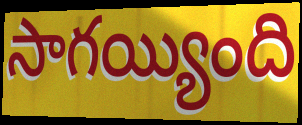
సాగయ్యింది